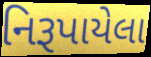
નિરૂપાયેલા